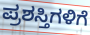
ಪ್ರಶಸ್ತಿಗಳಿಗೆ